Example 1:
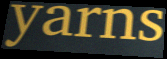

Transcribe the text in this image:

yarns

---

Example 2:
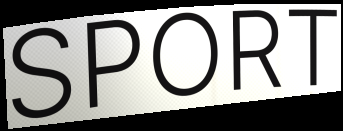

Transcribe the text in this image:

SPORT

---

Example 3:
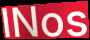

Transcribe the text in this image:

INos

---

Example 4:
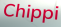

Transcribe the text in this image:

Chippi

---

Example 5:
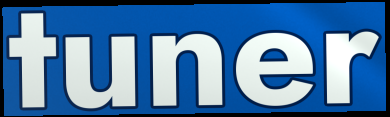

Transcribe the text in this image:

tuner